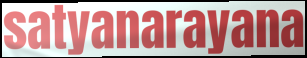
satyanarayana